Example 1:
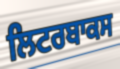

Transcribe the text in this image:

ਲਿਟਰਬਾਕਸ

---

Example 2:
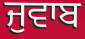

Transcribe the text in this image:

ਜੁਵਾਬ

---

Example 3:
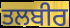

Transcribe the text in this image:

ਤਲਬੀਰ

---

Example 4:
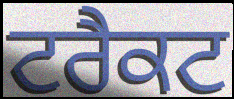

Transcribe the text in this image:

ਟਰੈਕਟ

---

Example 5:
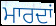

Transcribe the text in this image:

ਮਾਰਦਾਂ